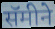
सॅमीने